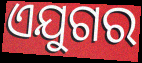
ଏଯୁଗର